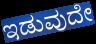
ಇಡುವುದೇ